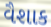
વૈશાક